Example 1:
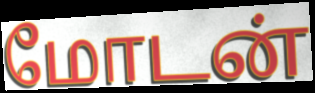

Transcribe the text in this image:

மோடன்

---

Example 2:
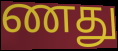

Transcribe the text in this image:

ணது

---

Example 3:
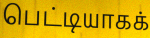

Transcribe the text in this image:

பெட்டியாகக்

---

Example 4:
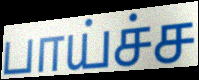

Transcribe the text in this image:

பாய்ச்ச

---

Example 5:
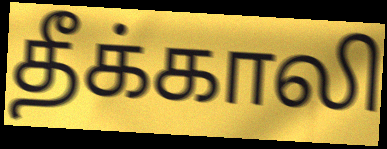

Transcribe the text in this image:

தீக்காலி